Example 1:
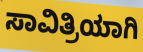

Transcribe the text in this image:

ಸಾವಿತ್ರಿಯಾಗಿ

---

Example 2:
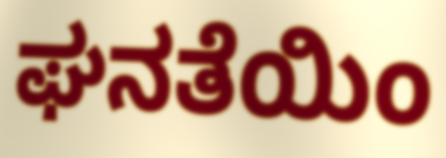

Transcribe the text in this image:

ಘನತೆಯಿಂ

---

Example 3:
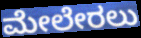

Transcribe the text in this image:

ಮೇಲೇರಲು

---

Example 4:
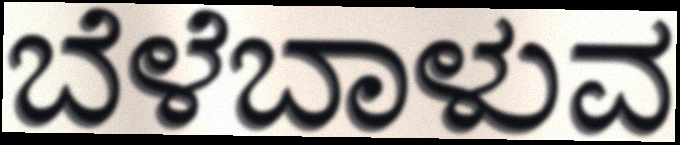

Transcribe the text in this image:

ಬೆಳೆಬಾಳುವ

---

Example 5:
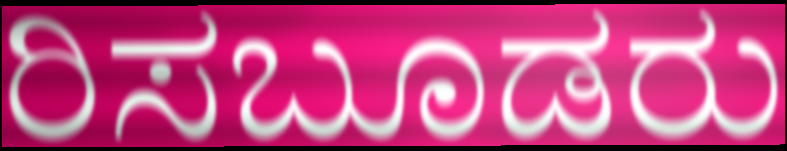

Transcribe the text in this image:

ರಿಸಬೂಡರು